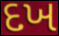
દખ